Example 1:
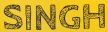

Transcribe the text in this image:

SINGH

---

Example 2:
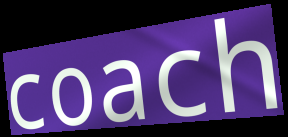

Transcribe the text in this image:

coach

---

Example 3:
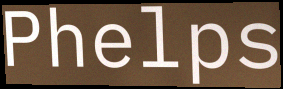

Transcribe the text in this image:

Phelps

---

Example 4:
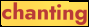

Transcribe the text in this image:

chanting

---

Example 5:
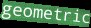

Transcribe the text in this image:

geometric